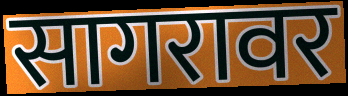
सागरावर